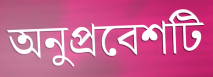
অনুপ্রবেশটি